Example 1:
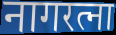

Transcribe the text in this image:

नागरत्ना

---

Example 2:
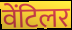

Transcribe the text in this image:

वेंटिलर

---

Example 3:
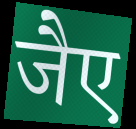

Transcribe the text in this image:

जैए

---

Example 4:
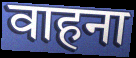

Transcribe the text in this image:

वाहना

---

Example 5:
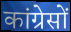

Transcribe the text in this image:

कांग्रेसों